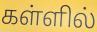
கள்ளில்